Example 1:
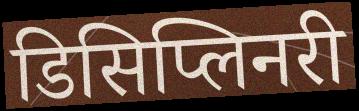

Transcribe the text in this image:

डिसिप्लिनरी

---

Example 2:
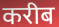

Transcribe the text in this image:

करीब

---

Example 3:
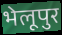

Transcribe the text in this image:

भेलूपुर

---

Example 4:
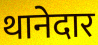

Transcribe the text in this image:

थानेदार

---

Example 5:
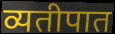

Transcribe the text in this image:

व्यतीपात